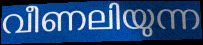
വീണലിയുന്ന